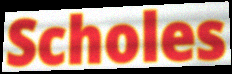
Scholes